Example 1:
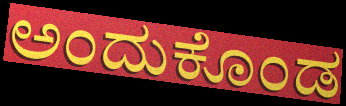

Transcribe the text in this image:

ಅಂದುಕೊಂಡ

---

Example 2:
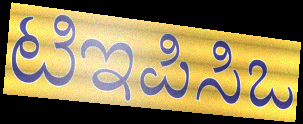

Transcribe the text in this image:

ಟಿಇಪಿಸಿಒ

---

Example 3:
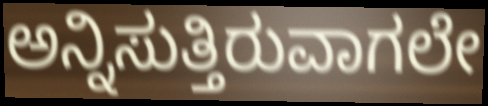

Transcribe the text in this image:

ಅನ್ನಿಸುತ್ತಿರುವಾಗಲೇ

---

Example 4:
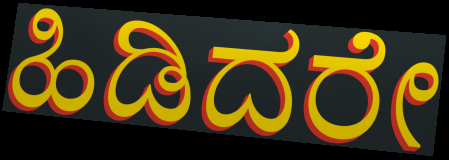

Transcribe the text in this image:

ಹಿಡಿದರೇ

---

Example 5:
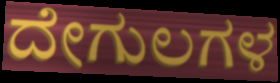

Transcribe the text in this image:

ದೇಗುಲಗಳ